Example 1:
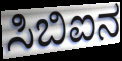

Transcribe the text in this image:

ಸಿಬಿಐನ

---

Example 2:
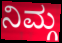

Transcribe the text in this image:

ನಿಮ್ಗ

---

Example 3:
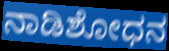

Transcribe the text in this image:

ನಾಡಿಶೋಧನ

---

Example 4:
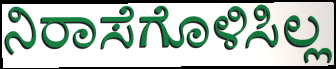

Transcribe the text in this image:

ನಿರಾಸೆಗೊಳಿಸಿಲ್ಲ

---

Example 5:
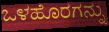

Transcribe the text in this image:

ಒಳಹೊರಗನ್ನು